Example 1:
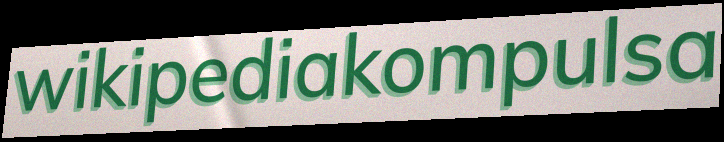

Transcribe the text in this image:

wikipediakompulsa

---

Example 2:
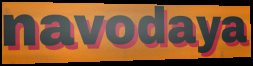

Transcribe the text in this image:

navodaya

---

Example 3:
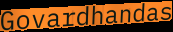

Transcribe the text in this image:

Govardhandas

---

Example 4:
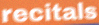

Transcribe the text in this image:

recitals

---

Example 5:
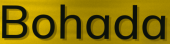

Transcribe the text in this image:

Bohada